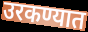
उरकण्यात